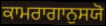
ਕਾਮਰਾਗਾਨੁਸਯੋ